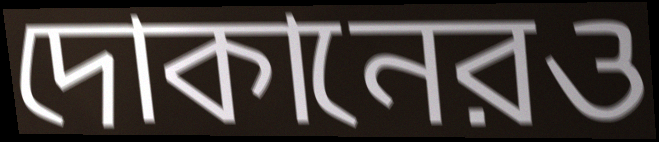
দোকানেরও